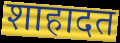
शाहादत